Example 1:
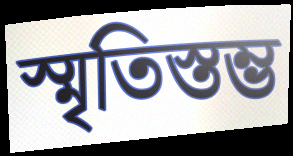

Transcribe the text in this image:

স্মৃতিস্তম্ভ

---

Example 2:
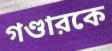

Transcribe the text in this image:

গণ্ডারকে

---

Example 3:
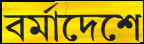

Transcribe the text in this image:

বর্মাদেশে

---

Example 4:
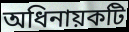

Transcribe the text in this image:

অধিনায়কটি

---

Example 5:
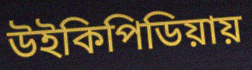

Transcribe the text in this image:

উইকিপিডিয়ায়